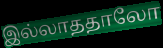
இல்லாததாலோ